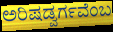
ಅರಿಷಡ್ವರ್ಗವೆಂಬ